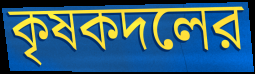
কৃষকদলের